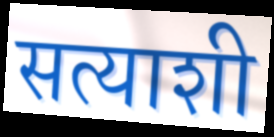
सत्याशी